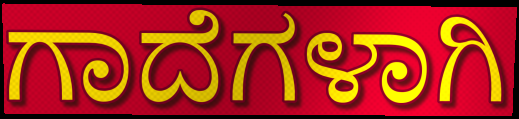
ಗಾದೆಗಳಾಗಿ